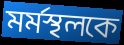
মর্মস্থলকে